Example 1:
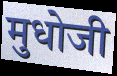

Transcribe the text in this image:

मुधोजी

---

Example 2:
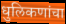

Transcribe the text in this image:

धुलिकणांचा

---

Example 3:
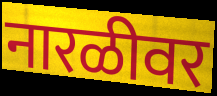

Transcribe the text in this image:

नारळीवर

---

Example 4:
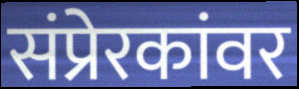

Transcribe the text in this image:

संप्रेरकांवर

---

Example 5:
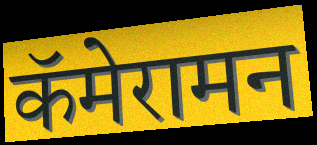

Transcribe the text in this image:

कॅमेरामन